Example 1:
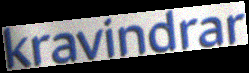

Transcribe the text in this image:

kravindrar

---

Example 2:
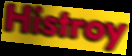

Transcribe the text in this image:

Histroy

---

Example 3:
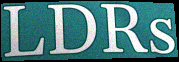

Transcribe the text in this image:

LDRs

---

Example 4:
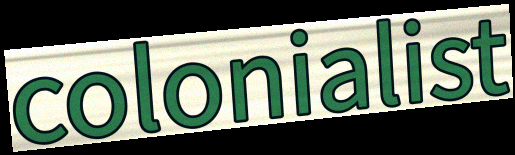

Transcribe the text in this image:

colonialist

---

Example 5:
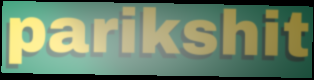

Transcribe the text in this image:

parikshit